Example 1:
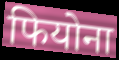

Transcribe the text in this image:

फियोना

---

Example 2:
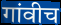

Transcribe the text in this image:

गांवीच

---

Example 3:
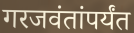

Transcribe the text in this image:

गरजवंतांपर्यंत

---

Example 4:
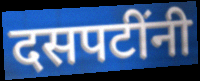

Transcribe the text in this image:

दसपटींनी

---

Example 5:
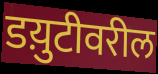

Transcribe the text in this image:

डय़ुटीवरील